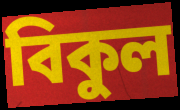
বিকুল